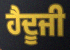
ਹੈਦੂਜੀ